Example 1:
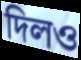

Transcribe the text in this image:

দিলও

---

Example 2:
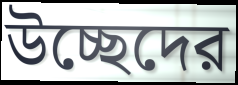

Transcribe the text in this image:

উচ্ছেদের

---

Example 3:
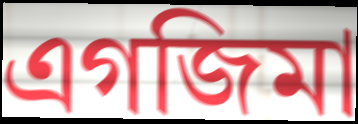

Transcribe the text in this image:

এগজিমা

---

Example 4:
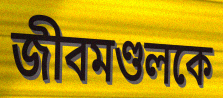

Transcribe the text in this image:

জীবমণ্ডলকে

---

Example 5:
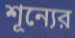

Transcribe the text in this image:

শূন্যের